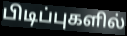
பிடிப்புகளில்